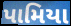
પામિયા